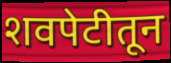
शवपेटीतून